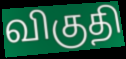
விகுதி